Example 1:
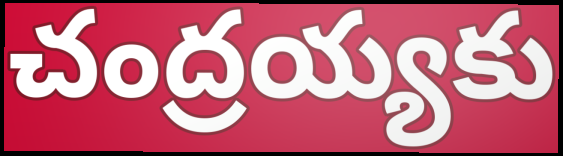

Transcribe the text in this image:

చంద్రయ్యకు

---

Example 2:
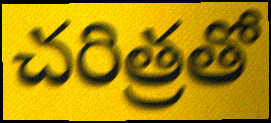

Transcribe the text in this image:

చరిత్రతో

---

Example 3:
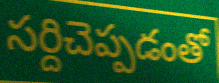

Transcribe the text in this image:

సర్దిచెప్పడంతో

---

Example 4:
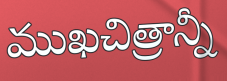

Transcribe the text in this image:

ముఖచిత్రాన్నీ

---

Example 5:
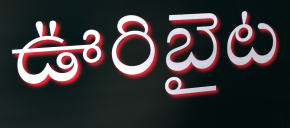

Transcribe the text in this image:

ఊరిబైట